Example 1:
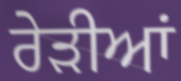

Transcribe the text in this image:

ਰੇੜੀਆਂ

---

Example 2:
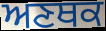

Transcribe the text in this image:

ਅਣਥਕ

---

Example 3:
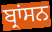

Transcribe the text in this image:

ਬ੍ਰਾਂਸਨ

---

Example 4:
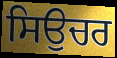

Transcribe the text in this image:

ਸਿਉਚਰ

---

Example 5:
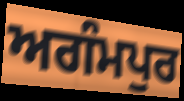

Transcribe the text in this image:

ਅਗੰਮਪੁਰ